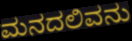
ಮನದಲಿವನು